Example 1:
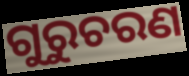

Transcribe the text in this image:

ଗୁରୁଚରଣ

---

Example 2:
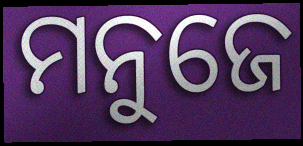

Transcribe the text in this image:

ମନୁଜେ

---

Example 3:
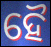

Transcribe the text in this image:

ହୈ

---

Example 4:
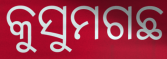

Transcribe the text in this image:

କୁସୁମଗଛ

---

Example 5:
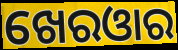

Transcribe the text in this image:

ଖେରଓାର